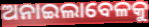
ଅନାଇଲାବେଳକୁ